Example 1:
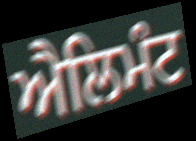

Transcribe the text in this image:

ਐਲਿਮੰਟ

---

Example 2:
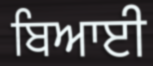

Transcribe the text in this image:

ਬਿਆਈ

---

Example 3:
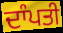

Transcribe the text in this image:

ਦਾੰਪਤੀ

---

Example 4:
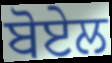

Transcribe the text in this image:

ਬੋਏਲ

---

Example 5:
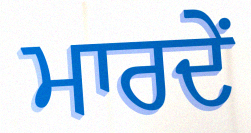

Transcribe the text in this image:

ਮਾਰਦੇਂ